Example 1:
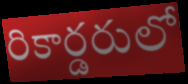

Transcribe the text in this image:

రికార్డరులో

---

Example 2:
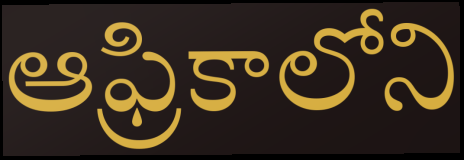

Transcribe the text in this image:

ఆఫ్రికాలోని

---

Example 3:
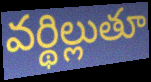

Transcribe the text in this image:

వర్థిల్లుతూ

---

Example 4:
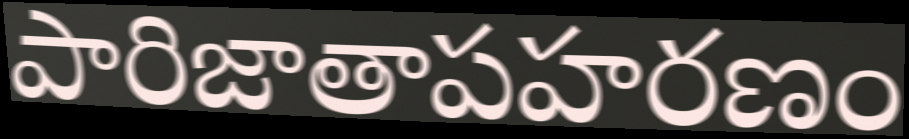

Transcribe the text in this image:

పారిజాతాపహరణం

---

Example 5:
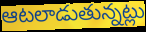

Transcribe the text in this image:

ఆటలాడుతున్నట్లు